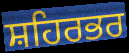
ਸ਼ਹਿਰਭਰ